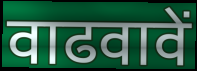
वाढवावें